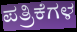
ಪತ್ರಿಕೆಗಳ